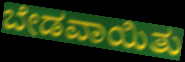
ಬೇಡವಾಯಿತು